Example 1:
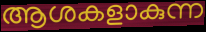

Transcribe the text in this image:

ആശകളാകുന്ന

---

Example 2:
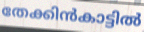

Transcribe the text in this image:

തേക്കിൻകാട്ടിൽ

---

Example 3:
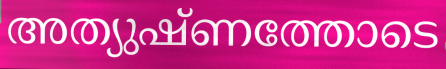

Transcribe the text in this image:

അത്യുഷ്ണത്തോടെ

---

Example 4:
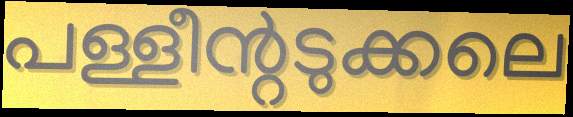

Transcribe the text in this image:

പള്ളീന്റടുക്കലെ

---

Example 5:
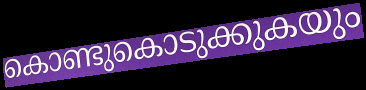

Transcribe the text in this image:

കൊണ്ടുകൊടുക്കുകയും